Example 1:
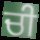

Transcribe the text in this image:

ਚੀ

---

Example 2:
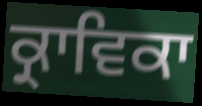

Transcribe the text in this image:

ਕ੍ਰਾਵਿਕਾ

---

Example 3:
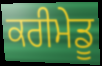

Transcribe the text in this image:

ਕਰੀਮੇਡੂ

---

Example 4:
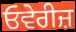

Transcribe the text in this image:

ਓਵੇਰੀਜ਼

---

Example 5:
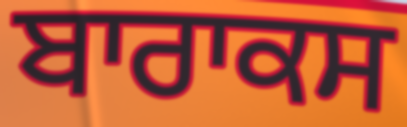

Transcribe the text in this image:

ਬਾਰਾਕਸ